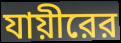
যায়ীরের